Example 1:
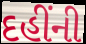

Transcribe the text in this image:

દહીંની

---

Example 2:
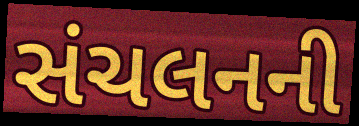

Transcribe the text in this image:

સંચલનની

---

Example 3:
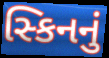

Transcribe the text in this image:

સ્કિનનું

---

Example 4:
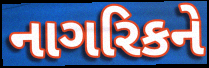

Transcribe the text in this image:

નાગરિકને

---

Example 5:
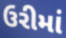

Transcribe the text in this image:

ઉરીમાં